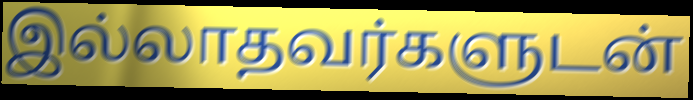
இல்லாதவர்களுடன்